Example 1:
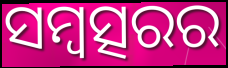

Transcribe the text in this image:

ସମ୍ବତ୍ସରର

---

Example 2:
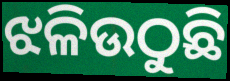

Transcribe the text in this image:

ଝଳିଉଠୁଛି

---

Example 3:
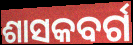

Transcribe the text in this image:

ଶାସକବର୍ଗ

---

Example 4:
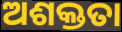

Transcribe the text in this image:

ଅଶକ୍ତତା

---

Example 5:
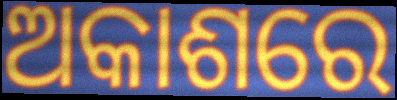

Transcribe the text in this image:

ଅକାଶରେ